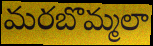
మరబొమ్మలా